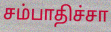
சம்பாதிச்சா